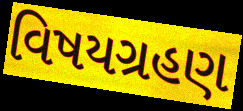
વિષયગ્રહણ